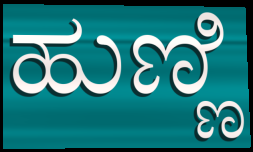
ಹುಣ್ಣಿ